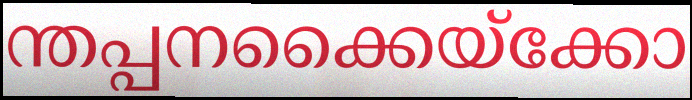
ന്തപ്പനക്കൈയ്ക്കോ